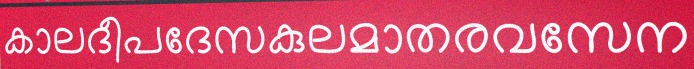
കാലദീപദേസകുലമാതരവസേന